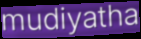
mudiyatha